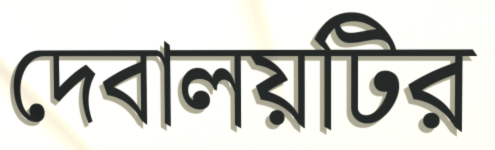
দেবালয়টির